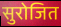
सुरोजित